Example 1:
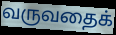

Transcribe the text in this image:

வருவதைக்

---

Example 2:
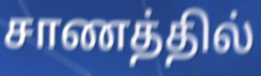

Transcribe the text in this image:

சாணத்தில்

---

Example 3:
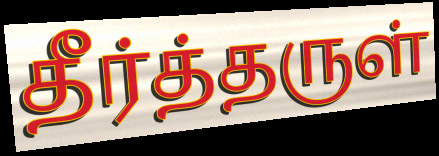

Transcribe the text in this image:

தீர்த்தருள்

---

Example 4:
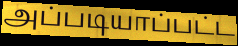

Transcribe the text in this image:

அப்படியாப்பட்ட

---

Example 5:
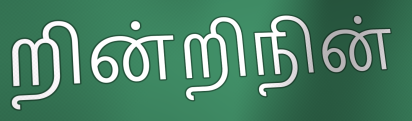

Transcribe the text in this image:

றின்றிநின்